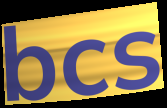
bcs